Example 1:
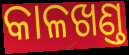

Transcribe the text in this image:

କାଳଖଣ୍ଡ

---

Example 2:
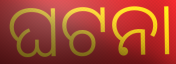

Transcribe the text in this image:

ଘଟନା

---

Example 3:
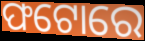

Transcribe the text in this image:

ଫଟୋରେ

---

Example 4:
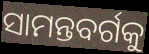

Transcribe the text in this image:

ସାମନ୍ତବର୍ଗକୁ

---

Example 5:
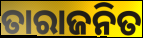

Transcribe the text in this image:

ତାରାଜନିତ